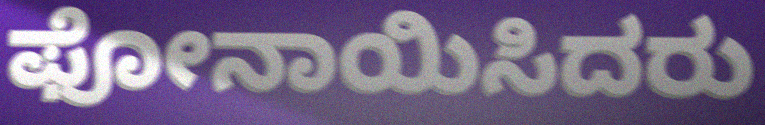
ಫೋನಾಯಿಸಿದರು